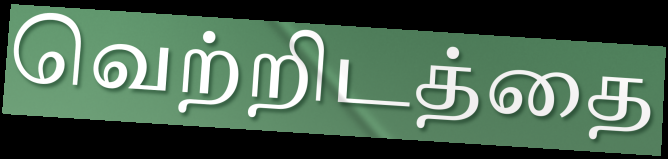
வெற்றிடத்தை